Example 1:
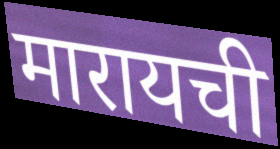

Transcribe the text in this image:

मारायची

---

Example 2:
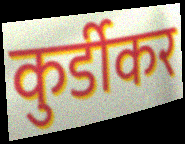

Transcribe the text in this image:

कुर्डीकर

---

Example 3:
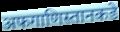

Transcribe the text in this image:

अफगाणिस्तानकडे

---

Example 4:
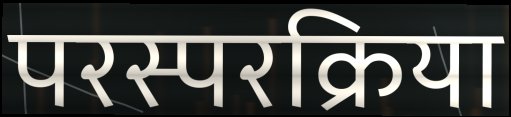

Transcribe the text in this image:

परस्परक्रिया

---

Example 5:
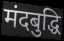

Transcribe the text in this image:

मंदबुद्धि